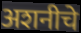
अशनीचे